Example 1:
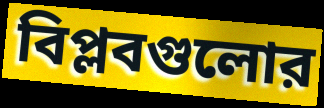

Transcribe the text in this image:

বিপ্লবগুলোর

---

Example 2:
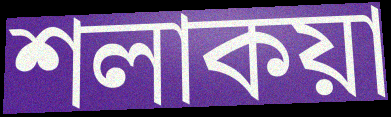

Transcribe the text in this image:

শলাকয়া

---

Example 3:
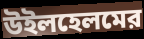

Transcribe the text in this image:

উইলহেলমের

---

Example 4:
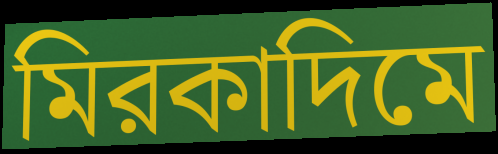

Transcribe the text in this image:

মিরকাদিমে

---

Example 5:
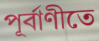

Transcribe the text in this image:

পূর্বাণীতে